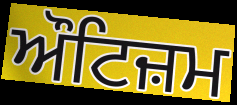
ਔਟਿਜ਼ਮ